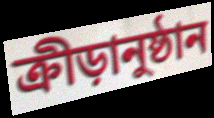
ক্ৰীড়ানুষ্ঠান